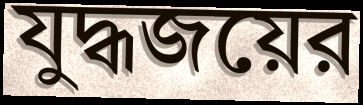
যুদ্ধজয়ের